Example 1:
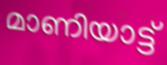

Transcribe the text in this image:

മാണിയാട്ട്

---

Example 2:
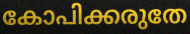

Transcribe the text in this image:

കോപിക്കരുതേ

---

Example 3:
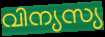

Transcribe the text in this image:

വിന്യസ്യ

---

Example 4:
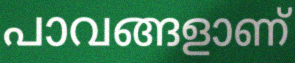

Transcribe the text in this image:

പാവങ്ങളാണ്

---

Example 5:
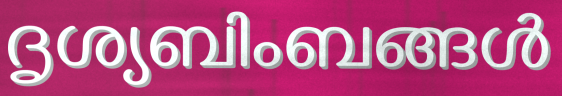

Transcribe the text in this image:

ദൃശ്യബിംബങ്ങൾ